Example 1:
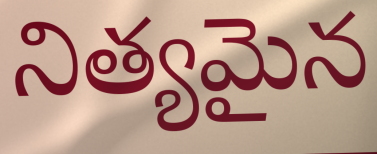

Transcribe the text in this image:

నిత్యమైన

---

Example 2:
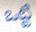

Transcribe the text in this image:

ఒట్టి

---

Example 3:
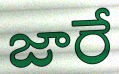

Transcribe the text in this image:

జారే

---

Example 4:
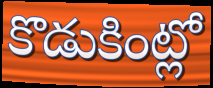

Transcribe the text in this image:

కొడుకింట్లో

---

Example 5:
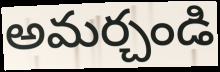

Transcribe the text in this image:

అమర్చండి